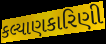
કલ્યાણકારિણી